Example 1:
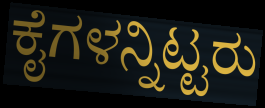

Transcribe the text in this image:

ಕೈಗಳನ್ನಿಟ್ಟರು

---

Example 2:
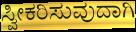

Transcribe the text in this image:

ಸ್ವೀಕರಿಸುವುದಾಗಿ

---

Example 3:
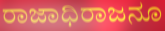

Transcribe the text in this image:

ರಾಜಾಧಿರಾಜನೂ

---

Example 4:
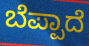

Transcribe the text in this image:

ಬೆಪ್ಪಾದೆ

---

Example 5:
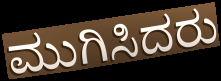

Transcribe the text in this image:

ಮುಗಿಸಿದರು